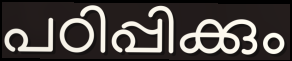
പഠിപ്പിക്കും